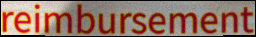
reimbursement